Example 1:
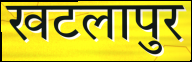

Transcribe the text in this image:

खटलापुर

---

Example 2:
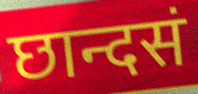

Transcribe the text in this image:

छान्दसं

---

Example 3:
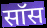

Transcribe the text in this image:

सॉस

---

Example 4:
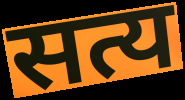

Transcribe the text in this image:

सत्य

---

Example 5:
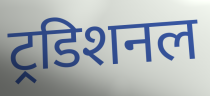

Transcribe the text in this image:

ट्रडिशनल